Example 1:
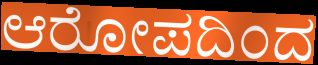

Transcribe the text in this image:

ಆರೋಪದಿಂದ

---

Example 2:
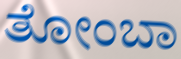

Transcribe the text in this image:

ತೋಂಬಾ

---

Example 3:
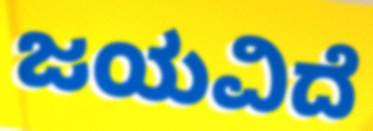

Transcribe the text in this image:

ಜಯವಿದೆ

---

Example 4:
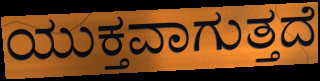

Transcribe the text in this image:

ಯುಕ್ತವಾಗುತ್ತದೆ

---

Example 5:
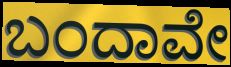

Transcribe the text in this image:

ಬಂದಾವೇ